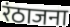
रंठाजना